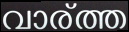
വാര്ത്ത